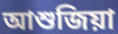
আশুজিয়া